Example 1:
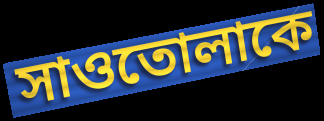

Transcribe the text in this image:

সাওতোলাকে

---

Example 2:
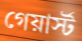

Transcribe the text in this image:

গেয়ার্স্ট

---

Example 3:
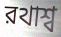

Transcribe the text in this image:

রথাশ্ব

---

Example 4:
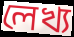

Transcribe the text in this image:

লেখ্য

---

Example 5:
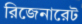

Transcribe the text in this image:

রিজেনারেট